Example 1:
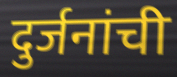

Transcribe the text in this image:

दुर्जनांची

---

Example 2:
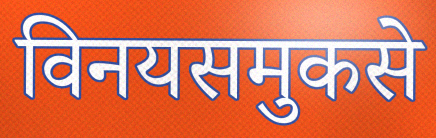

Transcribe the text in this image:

विनयसमुकसे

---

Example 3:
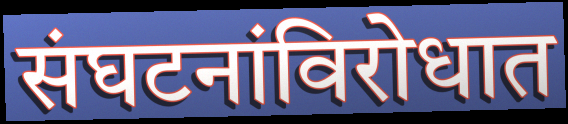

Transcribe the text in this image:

संघटनांविरोधात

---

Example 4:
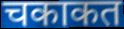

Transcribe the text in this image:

चकाकत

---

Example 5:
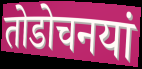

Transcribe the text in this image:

तोडोचनयां